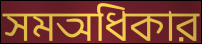
সমঅধিকার